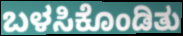
ಬಳಸಿಕೊಂಡಿತು